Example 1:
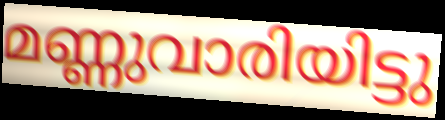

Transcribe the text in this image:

മണ്ണുവാരിയിട്ടു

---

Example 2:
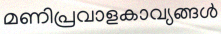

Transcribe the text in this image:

മണിപ്രവാളകാവ്യങ്ങൾ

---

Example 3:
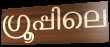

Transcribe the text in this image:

ഗ്രൂപ്പിലെ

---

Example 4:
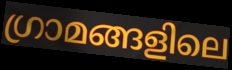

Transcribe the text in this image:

ഗ്രാമങ്ങളിലെ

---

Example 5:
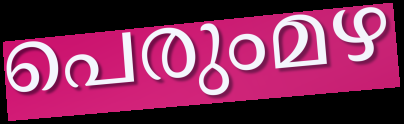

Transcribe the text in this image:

പെരുംമഴ